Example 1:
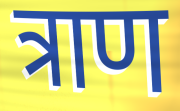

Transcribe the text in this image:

त्राण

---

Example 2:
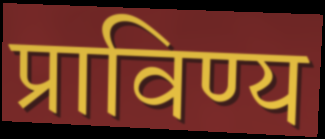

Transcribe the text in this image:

प्राविण्य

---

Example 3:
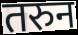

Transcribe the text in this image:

तरुन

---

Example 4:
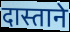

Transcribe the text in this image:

दास्ताने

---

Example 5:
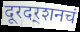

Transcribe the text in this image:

दूरदर्शनचं